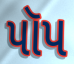
પૉપ